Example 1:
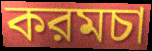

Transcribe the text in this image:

করমচা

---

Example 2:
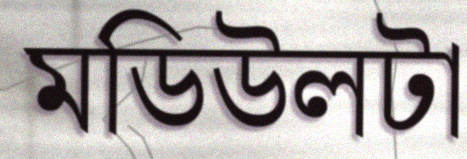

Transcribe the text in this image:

মডিউলটা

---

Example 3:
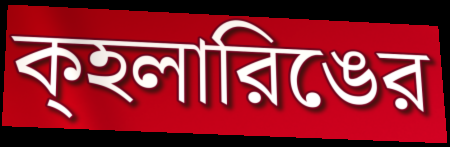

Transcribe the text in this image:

ক্হলারিঙের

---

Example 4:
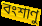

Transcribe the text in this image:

বংশাণু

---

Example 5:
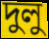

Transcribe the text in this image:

দুলু